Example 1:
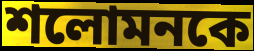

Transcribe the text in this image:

শলোমনকে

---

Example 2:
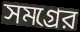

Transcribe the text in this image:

সমগ্রের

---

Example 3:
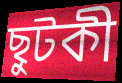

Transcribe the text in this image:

ছুটকী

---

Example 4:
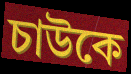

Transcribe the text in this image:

চাউকে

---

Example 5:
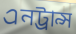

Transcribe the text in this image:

এনট্রান্স